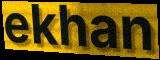
ekhan